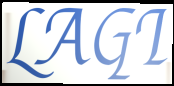
LAGI